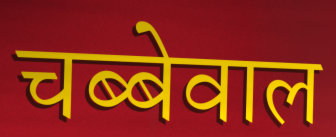
चब्बेवाल